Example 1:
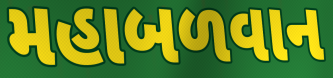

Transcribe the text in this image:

મહાબળવાન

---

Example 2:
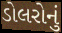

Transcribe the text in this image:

ડોલરોનું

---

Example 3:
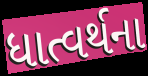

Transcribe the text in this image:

ધાત્વર્થના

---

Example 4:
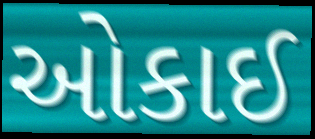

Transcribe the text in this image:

ઓકાઈ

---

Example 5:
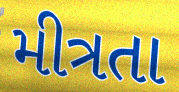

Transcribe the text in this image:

મીત્રતા